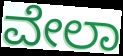
ವೇಲಾ